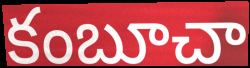
కంబూచా